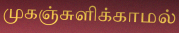
முகஞ்சுளிக்காமல்